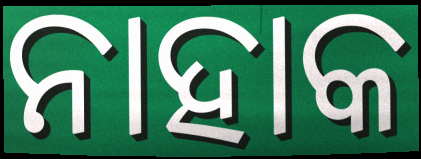
ନାହାକ